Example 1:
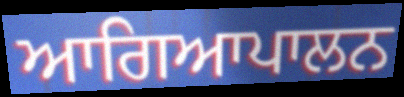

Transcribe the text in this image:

ਆਗਿਆਪਾਲਨ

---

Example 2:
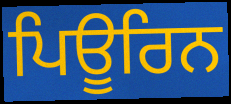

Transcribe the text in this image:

ਪਿਊਰਿਨ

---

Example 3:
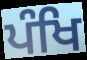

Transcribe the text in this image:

ਪੰਖਿ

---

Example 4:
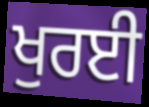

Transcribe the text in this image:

ਖੁਰਈ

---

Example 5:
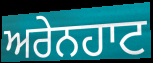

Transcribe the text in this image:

ਅਰੇਨਹਾਟ